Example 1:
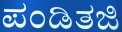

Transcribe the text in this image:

ಪಂಡಿತಜಿ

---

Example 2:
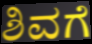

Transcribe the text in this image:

ಶಿವಗೆ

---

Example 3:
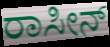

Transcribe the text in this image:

ರಾಸೀನ್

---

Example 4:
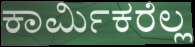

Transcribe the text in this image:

ಕಾರ್ಮಿಕರೆಲ್ಲ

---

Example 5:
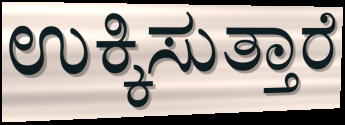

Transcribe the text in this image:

ಉಕ್ಕಿಸುತ್ತಾರೆ